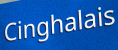
Cinghalais